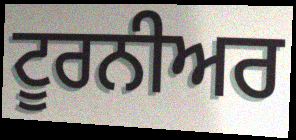
ਟੂਰਨੀਅਰ